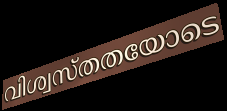
വിശ്വസ്തതയോടെ